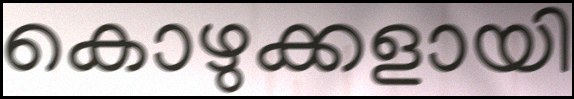
കൊഴുക്കളായി